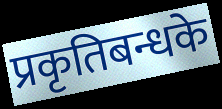
प्रकृतिबन्धके